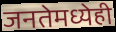
जनतेमध्येही